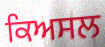
ਕਿਅਸਲ